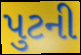
પુટની